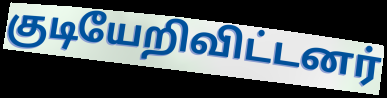
குடியேறிவிட்டனர்